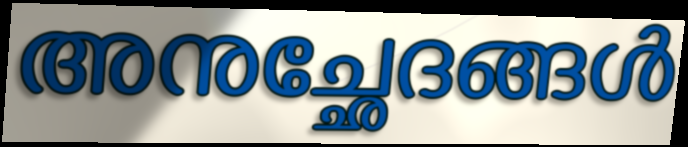
അനുച്ഛേദങ്ങൾ